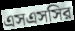
এসএসসির